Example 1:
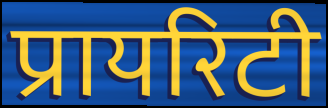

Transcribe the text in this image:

प्रायरिटी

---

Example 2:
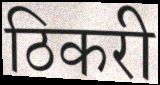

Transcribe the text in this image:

ठिकरी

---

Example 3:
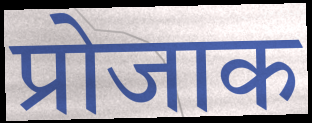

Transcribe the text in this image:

प्रोजाक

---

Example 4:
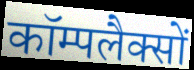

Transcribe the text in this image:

कॉम्पलैक्सों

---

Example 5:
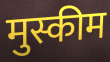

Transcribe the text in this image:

मुस्कीम